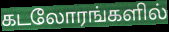
கடலோரங்களில்